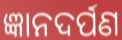
ଜ୍ଞାନଦର୍ପଣ